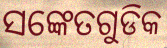
ସଙ୍କେତଗୁଡିକ